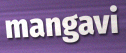
mangavi